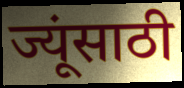
ज्यूंसाठी